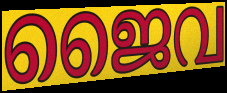
ജൈവ